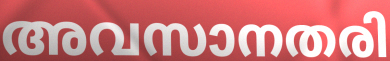
അവസാനതരി